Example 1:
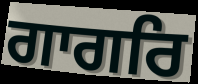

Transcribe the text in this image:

ਗਾਗਰਿ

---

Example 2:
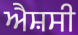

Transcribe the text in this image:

ਐਸ਼ਸੀ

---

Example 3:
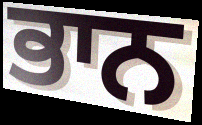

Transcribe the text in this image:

ਭਾਨ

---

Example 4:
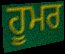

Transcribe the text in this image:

ਹੂਮਰ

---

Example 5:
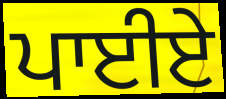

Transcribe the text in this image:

ਪਾਈਏ